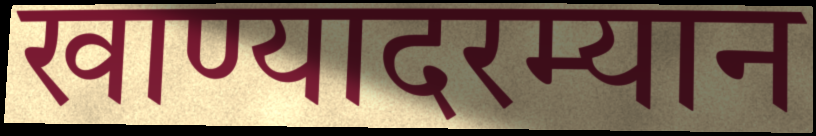
खाण्यादरम्यान